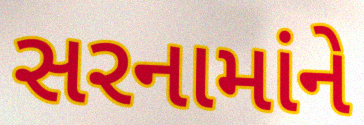
સરનામાંને